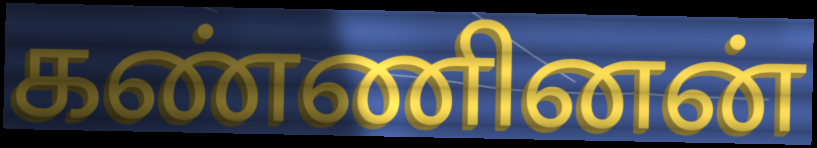
கண்ணினன்